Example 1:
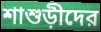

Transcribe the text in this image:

শাশুড়ীদের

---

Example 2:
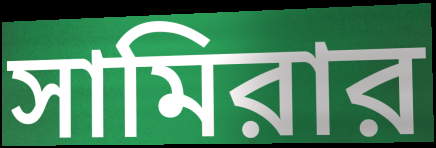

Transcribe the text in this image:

সামিরার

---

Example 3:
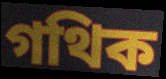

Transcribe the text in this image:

গথিক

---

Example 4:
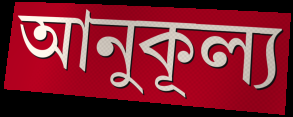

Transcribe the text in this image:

আনুকূল্য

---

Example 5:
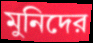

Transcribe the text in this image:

মুনিদের